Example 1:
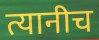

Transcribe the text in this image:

त्यानीच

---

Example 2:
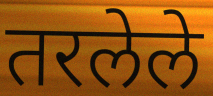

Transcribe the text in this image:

तरलेले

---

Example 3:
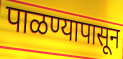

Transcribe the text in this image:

पाळण्यापासून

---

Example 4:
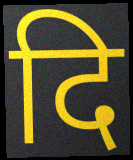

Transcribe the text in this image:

दि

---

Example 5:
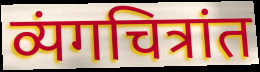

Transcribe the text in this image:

व्यंगचित्रांत